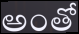
అంతో